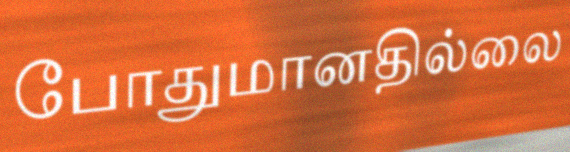
போதுமானதில்லை